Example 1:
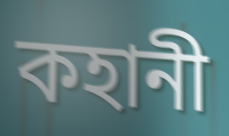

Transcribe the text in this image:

কহানী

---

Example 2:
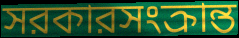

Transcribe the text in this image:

সরকারসংক্রান্ত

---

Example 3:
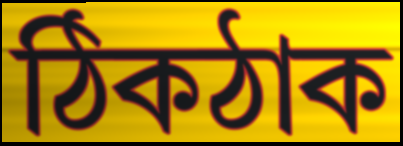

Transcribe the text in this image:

ঠিকঠাক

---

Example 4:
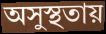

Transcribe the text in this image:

অসুস্থতায়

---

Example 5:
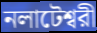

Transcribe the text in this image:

নলাটেশ্বরী